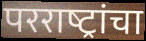
परराष्ट्रांचा